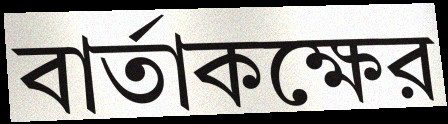
বার্তাকক্ষের